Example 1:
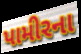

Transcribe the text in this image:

પામીરના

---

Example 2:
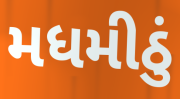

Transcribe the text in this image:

મધમીઠું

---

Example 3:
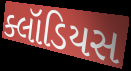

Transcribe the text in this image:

ક્લૉડિયસ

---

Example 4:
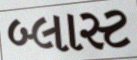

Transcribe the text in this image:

બ્લાસ્ટ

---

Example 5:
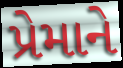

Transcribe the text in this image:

પ્રેમાને